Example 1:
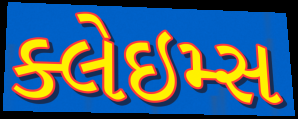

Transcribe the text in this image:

ક્લેઇમ્સ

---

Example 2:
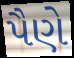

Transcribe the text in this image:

પૈણે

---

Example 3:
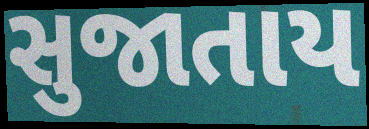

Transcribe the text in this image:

સુજાતાય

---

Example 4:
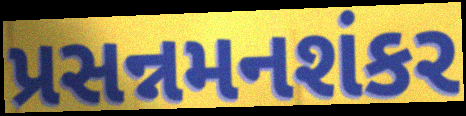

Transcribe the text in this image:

પ્રસન્નમનશંકર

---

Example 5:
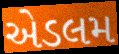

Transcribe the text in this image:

એડલમ